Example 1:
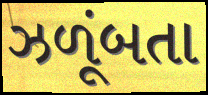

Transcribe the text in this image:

ઝળૂંબતા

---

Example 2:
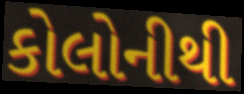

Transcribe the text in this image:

કોલોનીથી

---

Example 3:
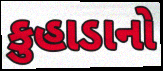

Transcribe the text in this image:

કુહાડાનો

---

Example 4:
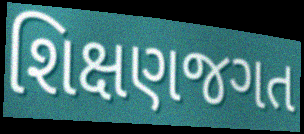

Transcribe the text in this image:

શિક્ષણજગત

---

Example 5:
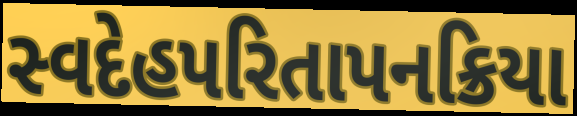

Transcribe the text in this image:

સ્વદેહપરિતાપનક્રિયા